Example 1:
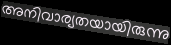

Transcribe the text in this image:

അനിവാര്യതയായിരുന്നു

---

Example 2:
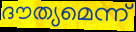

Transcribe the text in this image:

ദൗത്യമെന്ന്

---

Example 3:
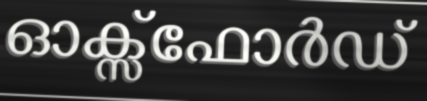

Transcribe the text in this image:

ഓക്സ്ഫോർഡ്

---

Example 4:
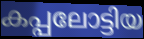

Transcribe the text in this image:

കപ്പലോട്ടിയ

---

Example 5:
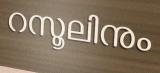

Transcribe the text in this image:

റസൂലിനും